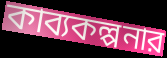
কাব্যকল্পনার